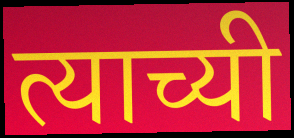
त्याच्यी